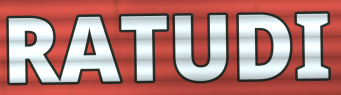
RATUDI